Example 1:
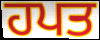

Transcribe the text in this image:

ਹਪਤ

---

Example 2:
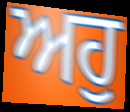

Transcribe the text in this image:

ਅਹੁ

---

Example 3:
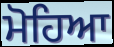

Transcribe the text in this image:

ਮੋਹਿਆ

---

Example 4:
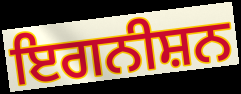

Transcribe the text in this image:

ਇਗਨੀਸ਼ਨ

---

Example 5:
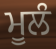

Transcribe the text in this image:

ਮੂਲੰ